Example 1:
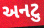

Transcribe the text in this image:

અનટુ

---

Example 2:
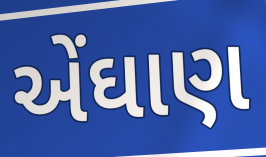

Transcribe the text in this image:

એંઘાણ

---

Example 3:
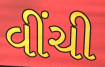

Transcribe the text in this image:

વીંચી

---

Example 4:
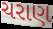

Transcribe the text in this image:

ચરાણ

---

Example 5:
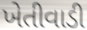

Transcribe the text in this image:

ખેતીવાડી